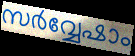
സർവ്വേഷാം